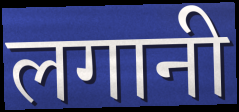
लगानी